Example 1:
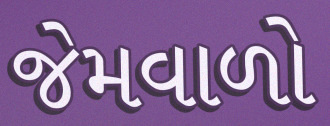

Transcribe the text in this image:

જેમવાળો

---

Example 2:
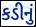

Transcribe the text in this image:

કડીનું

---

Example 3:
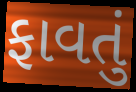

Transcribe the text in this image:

ફાવતું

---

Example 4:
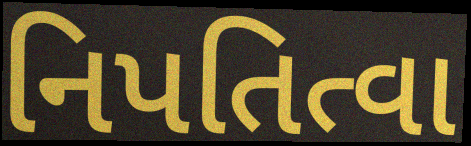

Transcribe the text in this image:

નિપતિત્વા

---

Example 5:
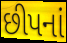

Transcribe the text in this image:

છીપનાં